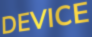
DEVICE